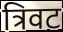
त्रिवट